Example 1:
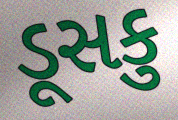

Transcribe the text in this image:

ડૂસકુ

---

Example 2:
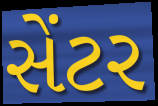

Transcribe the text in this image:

સેંટર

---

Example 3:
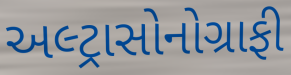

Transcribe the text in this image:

અલ્ટ્રાસોનોગ્રાફી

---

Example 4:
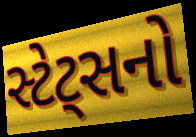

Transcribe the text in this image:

સ્ટેટ્સનો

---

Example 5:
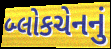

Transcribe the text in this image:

બ્લોકચેનનું